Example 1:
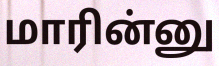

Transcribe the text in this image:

மாரின்னு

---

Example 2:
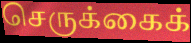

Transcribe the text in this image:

செருக்கைக்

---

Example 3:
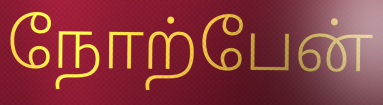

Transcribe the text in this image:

நோற்பேன்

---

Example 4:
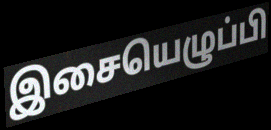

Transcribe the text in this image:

இசையெழுப்பி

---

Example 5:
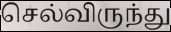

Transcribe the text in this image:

செல்விருந்து